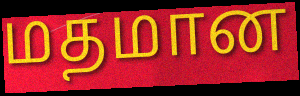
மதமான